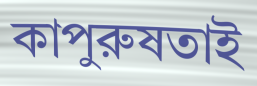
কাপুরুষতাই